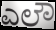
ಎಲೌ